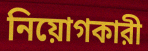
নিয়োগকারী